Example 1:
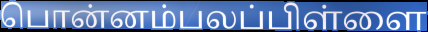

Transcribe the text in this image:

பொன்னம்பலப்பிள்ளை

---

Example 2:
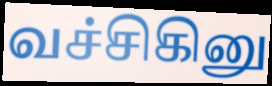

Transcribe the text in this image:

வச்சிகினு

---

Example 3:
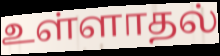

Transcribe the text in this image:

உள்ளாதல்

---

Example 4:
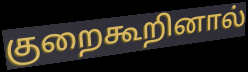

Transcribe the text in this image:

குறைகூறினால்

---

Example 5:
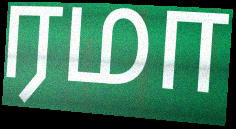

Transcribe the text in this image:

ரமா